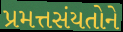
પ્રમત્તસંયતોને